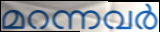
മറന്നവർ